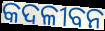
କଦଳୀବନ